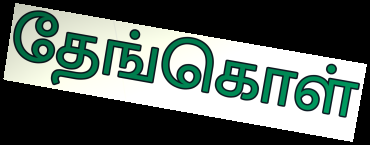
தேங்கொள்